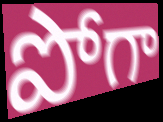
పోగా